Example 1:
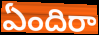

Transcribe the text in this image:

ఏందిరా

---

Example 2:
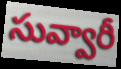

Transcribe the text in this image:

సువ్వారీ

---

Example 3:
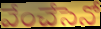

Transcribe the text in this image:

వేంచేసెనో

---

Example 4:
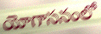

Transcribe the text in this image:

యోగాసనంలో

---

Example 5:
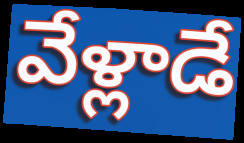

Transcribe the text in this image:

వేళ్లాడే